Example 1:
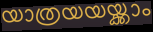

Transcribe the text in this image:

യാത്രയയയ്ക്കാം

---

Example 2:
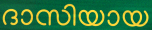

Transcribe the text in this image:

ദാസിയായ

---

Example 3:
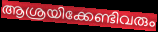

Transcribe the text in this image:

ആശ്രയിക്കേണ്ടിവരും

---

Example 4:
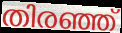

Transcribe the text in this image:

തിരഞ്ഞ്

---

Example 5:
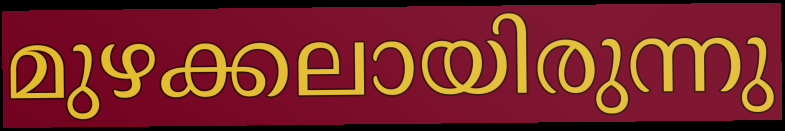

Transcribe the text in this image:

മുഴക്കലായിരുന്നു